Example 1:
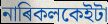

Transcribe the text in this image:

নাৰিকলকেইটা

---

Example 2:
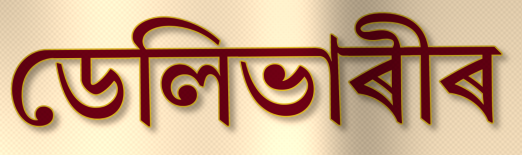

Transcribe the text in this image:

ডেলিভাৰীৰ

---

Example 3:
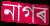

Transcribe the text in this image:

নাগৰ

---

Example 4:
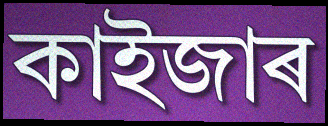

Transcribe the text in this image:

কাইজাৰ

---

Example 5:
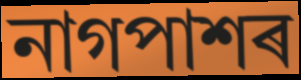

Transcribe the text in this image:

নাগপাশৰ